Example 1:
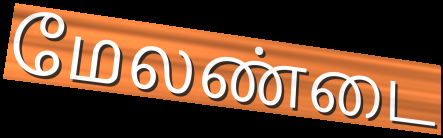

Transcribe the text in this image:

மேலண்டை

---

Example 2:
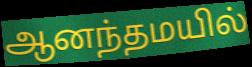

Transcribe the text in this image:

ஆனந்தமயில்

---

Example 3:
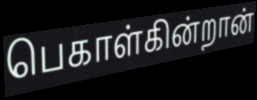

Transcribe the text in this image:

பெகாள்கின்றான்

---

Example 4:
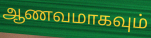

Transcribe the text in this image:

ஆணவமாகவும்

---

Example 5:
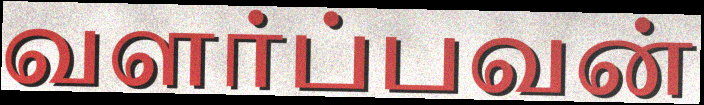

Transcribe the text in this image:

வளர்ப்பவன்